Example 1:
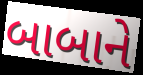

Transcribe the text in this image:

બાબાને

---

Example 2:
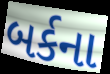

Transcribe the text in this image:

બર્કના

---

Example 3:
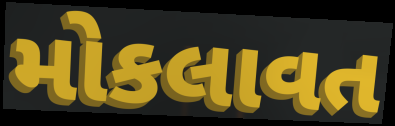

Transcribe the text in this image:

મોકલાવત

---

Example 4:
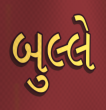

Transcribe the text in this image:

બુલ્લે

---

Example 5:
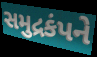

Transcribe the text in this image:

સમુદ્રકંપને